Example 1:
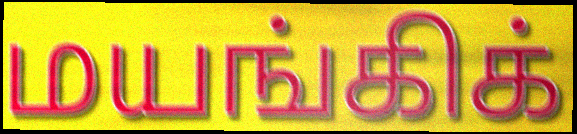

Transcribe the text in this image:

மயங்கிக்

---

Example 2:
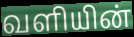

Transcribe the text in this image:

வளியின்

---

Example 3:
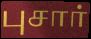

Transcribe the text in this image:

புசார்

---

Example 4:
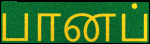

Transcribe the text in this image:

பானப்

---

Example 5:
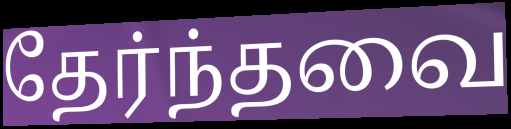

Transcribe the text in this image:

தேர்ந்தவை